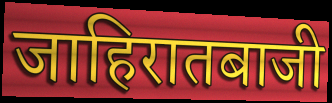
जाहिरातबाजी